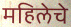
महिलेचे